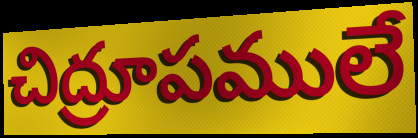
చిద్రూపములే